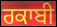
ਰਕਾਬੀ